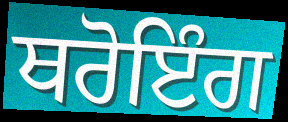
ਥਰੋਇੰਗ